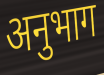
अनुभाग